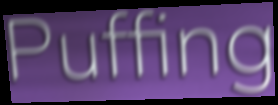
Puffing